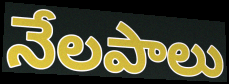
నేలపాలు